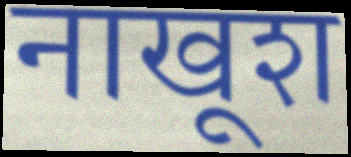
नाखूश